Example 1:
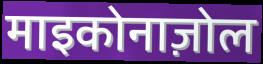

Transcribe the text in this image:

माइकोनाज़ोल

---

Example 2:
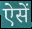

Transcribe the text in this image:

ऐसें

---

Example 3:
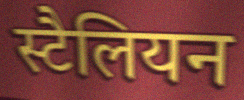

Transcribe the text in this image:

स्टैलियन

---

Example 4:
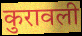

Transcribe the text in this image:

कुरावली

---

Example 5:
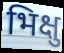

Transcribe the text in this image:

भिक्षु